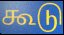
கூடு